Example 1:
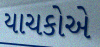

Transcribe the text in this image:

યાચકોએ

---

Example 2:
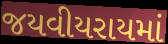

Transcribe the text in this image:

જયવીયરાયમાં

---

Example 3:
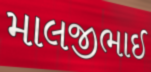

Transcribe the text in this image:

માલજીભાઈ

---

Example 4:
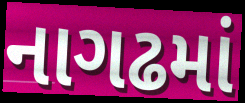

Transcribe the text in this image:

નાગઢમાં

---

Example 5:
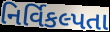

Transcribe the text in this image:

નિર્વિકલ્પતા